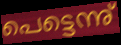
പെട്ടെന്നു്